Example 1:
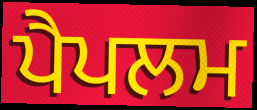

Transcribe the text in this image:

ਪੈਪਲਮ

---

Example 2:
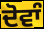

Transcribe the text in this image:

ਦੋਵਾੰ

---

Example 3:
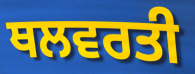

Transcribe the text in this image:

ਥਲਵਰਤੀ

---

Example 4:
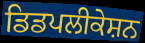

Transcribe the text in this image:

ਡਿਡਪਲੀਕੇਸ਼ਨ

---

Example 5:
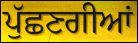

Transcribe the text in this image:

ਪੁੱਛਣਗੀਆਂ